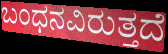
ಬಂಧನವಿರುತ್ತದೆ